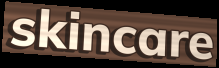
skincare